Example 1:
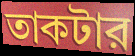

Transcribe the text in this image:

তাকটার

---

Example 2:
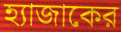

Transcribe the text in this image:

হ্যাজাকের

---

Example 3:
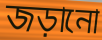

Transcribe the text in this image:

জড়ানো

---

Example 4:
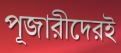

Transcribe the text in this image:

পূজারীদেরই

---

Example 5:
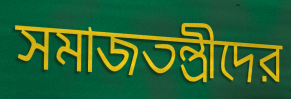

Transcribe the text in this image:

সমাজতন্ত্রীদের